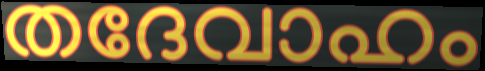
തദേവാഹം